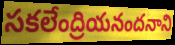
సకలేంద్రియనందనాని